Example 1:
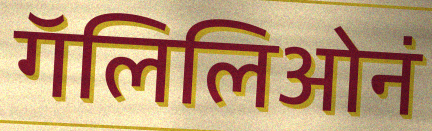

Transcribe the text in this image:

गॅलिलिओनं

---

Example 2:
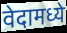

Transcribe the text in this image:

वेदामध्ये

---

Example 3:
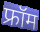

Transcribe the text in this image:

फ्रॉम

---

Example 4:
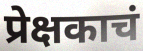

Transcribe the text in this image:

प्रेक्षकाचं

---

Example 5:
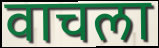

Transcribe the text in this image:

वाचला